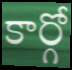
కార్గో